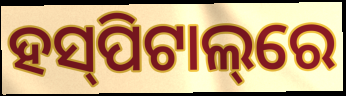
ହସ୍‌ପିଟାଲ୍‌ରେ